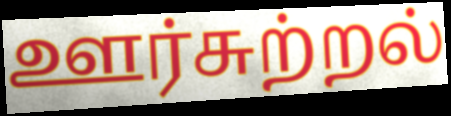
ஊர்சுற்றல்